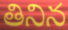
తినిన